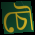
চৌ